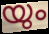
യും